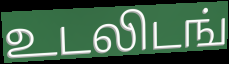
உடலிடங்